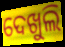
ଦେଖୁଲି